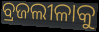
ବ୍ରଜଲୀଳାକୁ